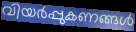
വിയർപ്പുകണങ്ങൾ